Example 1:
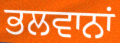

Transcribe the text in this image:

ਭਲਵਾਨਾਂ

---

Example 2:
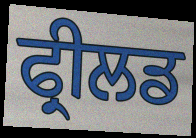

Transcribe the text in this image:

ਫ੍ਰੀਲਡ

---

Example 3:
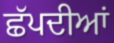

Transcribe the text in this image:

ਛੱਪਦੀਆਂ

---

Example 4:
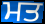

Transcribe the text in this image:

ਮਤ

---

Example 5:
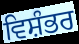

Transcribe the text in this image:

ਵਿਸ਼ੰਭਰ